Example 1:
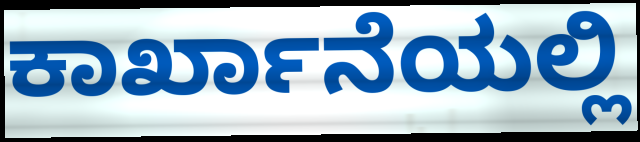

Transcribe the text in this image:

ಕಾರ್ಖಾನೆಯಲ್ಲಿ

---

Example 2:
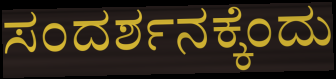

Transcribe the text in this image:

ಸಂದರ್ಶನಕ್ಕೆಂದು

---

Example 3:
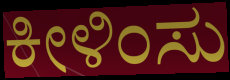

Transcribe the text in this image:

ಕೀಳಿಂಸು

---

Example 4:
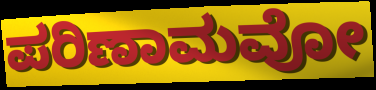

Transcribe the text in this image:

ಪರಿಣಾಮವೋ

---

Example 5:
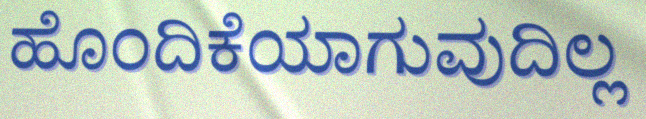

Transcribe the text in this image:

ಹೊಂದಿಕೆಯಾಗುವುದಿಲ್ಲ